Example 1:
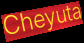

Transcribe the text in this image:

Cheyuta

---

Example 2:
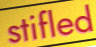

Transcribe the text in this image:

stifled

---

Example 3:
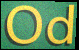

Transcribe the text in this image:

Od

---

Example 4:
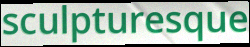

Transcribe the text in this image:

sculpturesque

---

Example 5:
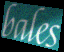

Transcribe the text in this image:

bales